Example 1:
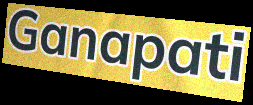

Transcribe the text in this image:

Ganapati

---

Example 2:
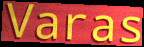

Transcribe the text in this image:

Varas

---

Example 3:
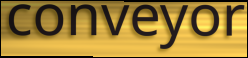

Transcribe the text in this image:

conveyor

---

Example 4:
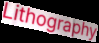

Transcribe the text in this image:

Lithography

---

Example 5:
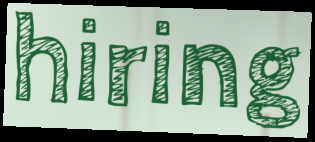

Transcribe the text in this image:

hiring